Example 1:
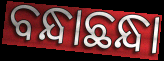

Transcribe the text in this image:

ବନ୍ଧାଛନ୍ଧା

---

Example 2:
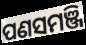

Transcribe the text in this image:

ପଣସମଞ୍ଜି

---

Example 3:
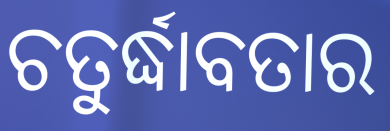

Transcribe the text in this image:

ଚତୁର୍ଦ୍ଧାବତାର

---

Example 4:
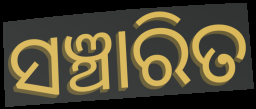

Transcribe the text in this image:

ସଞ୍ଚାରିତ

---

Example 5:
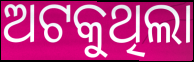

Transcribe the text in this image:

ଅଟକୁଥିଲା